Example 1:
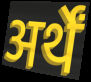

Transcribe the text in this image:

अर्थें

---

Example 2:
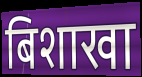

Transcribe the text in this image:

बिशाखा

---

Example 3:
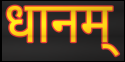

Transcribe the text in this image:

धानम्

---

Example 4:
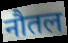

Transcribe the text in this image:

नौतल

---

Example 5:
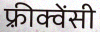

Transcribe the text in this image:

फ़्रीक्वेंसी